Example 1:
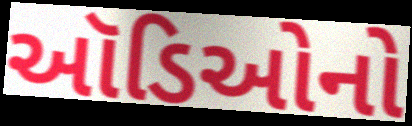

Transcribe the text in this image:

ઑડિઓનો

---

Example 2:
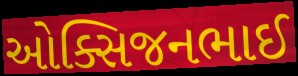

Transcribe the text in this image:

ઓક્સિજનભાઈ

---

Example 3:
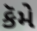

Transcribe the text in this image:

કૅમે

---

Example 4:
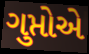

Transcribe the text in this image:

ગુપ્તોએ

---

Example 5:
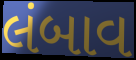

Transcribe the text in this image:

લંબાવ